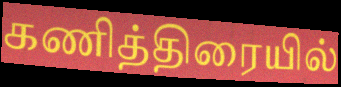
கணித்திரையில்